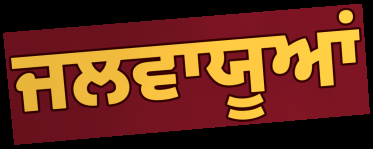
ਜਲਵਾਯੂਆਂ